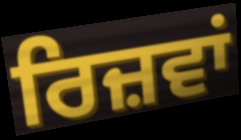
ਰਿਜ਼ਵਾਂ